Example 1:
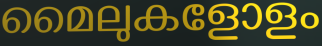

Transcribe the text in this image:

മൈലുകളോളം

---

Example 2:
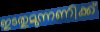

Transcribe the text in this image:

ഇടതുമുന്നണിക്ക്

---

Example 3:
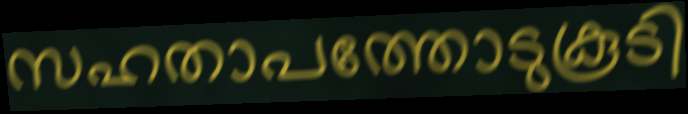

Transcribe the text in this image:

സഹതാപത്തോടുകൂടി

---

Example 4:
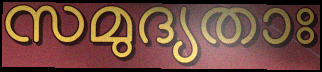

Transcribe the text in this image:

സമുദ്യതാഃ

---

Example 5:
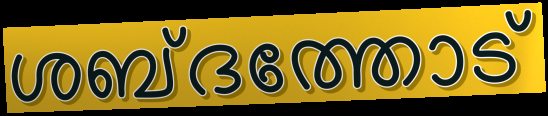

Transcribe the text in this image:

ശബ്ദത്തോട്